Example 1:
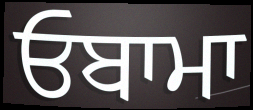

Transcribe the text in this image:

ਓਬਾਮਾ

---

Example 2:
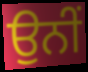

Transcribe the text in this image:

ਉਨੀਂ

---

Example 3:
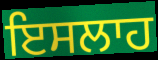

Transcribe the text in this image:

ਇਸਲਾਹ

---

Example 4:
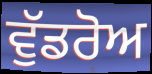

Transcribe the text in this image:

ਵੁੱਡਰੋਅ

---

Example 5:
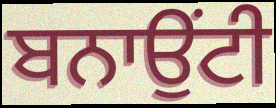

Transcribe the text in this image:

ਬਨਾਉਂਟੀ